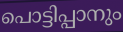
പൊട്ടിപ്പാനും